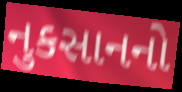
નુકસાનનો